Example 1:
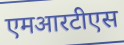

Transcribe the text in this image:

एमआरटीएस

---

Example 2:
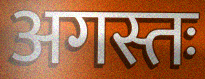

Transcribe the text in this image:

अगस्तः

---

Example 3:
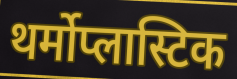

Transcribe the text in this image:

थर्मोप्लास्टिक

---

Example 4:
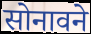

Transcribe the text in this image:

सोनावने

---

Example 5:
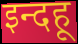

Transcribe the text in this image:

इन्दहू